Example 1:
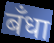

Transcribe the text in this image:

बँधा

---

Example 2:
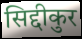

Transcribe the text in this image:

सिद्दीकुर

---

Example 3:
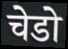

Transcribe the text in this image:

चेडो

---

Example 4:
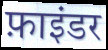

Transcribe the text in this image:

फ़ाइंडर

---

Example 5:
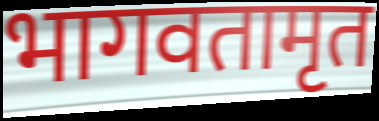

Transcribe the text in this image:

भागवतामृत